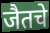
जैतचे